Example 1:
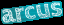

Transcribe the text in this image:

arcus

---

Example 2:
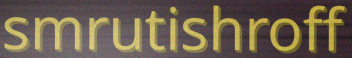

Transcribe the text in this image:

smrutishroff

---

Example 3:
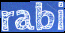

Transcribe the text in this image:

rabi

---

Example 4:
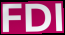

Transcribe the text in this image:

FDI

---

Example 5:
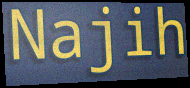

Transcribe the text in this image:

Najih